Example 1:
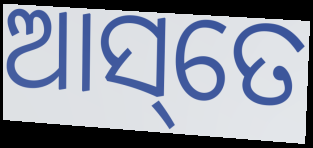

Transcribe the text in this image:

ଆସ୍‌ତେ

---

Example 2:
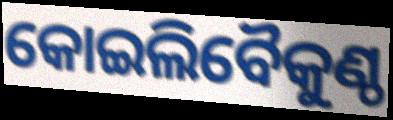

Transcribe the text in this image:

କୋଇଲିବୈକୁଣ୍ଠ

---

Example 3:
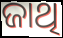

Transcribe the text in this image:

ଜାଥି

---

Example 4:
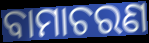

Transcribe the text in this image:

ବାମାଚରଣ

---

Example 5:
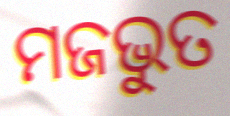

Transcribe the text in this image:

ମଜଭୁତ